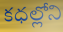
కధల్లోని